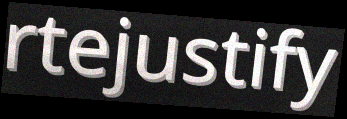
rtejustify